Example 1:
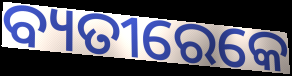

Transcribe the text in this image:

ବ୍ୟତୀରେକେ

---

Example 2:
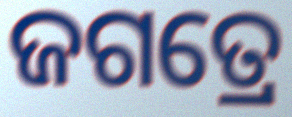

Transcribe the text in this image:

ଜଗତ୍ରେ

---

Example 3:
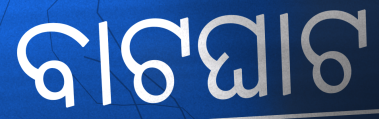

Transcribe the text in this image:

ବାଟଘାଟ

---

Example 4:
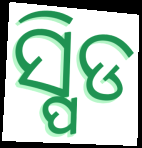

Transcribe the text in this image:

ସ୍ପିଡ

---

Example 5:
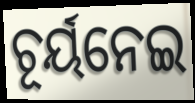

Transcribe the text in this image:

ଚୂର୍ୟନେଇ